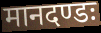
मानदण्डः